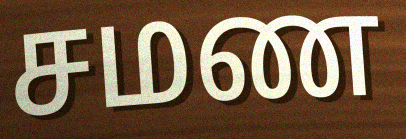
சமண